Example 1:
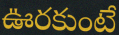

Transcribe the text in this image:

ఊరకుంటే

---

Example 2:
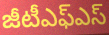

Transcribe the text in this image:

జీటీఎఫ్ఎస్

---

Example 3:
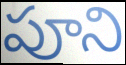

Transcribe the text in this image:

పూని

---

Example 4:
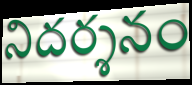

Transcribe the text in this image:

నిదర్శనం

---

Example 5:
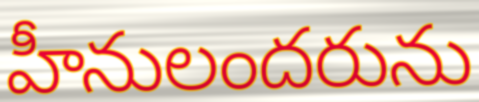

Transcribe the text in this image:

హీనులందరును